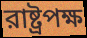
রাষ্ট্রপক্ষ